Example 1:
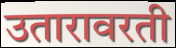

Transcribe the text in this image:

उतारावरती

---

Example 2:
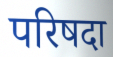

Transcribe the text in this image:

परिषदा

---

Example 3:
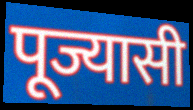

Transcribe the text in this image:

पूज्यासी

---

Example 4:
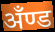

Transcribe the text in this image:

अँण्ड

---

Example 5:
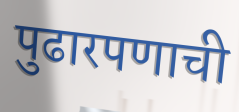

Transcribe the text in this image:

पुढारपणाची